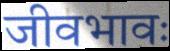
जीवभावः